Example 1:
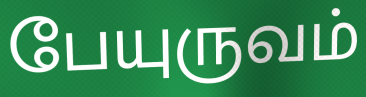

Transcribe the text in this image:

பேயுருவம்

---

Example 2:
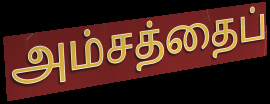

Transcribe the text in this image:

அம்சத்தைப்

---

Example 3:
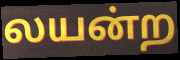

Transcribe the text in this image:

லயன்ற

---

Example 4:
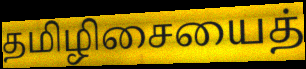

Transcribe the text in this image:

தமிழிசையைத்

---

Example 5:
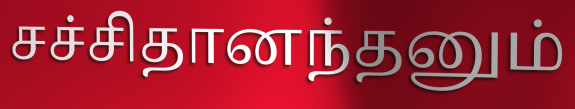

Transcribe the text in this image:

சச்சிதானந்தனும்